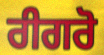
ਰੀਗਰੋ